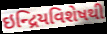
ઇન્દ્રિયવિશેષથી